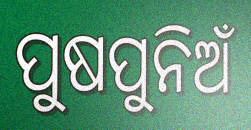
ପୁଷପୁନିଅଁ